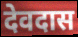
देवदास